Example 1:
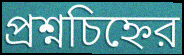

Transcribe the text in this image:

প্রশ্নচিহ্নের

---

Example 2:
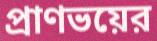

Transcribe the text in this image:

প্রাণভয়ের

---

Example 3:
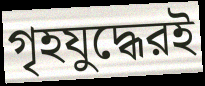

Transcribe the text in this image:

গৃহযুদ্ধেরই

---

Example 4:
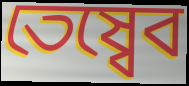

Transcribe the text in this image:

তেষ্বেব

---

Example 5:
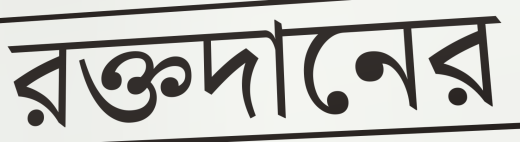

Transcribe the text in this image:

রক্তদানের